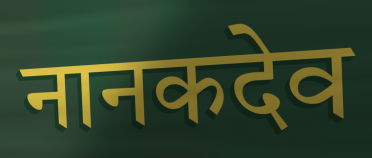
नानकदेव